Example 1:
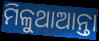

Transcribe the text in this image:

ମିଳୁଥାଆନ୍ତା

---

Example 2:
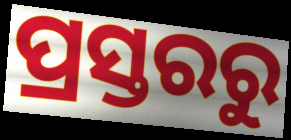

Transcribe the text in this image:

ପ୍ରସ୍ତରରୁ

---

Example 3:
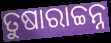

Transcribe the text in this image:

ତୁଷାରାଚ୍ଚନ୍ନ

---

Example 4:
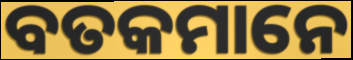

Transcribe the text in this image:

ବତକମାନେ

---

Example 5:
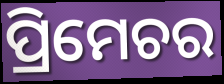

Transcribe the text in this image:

ପ୍ରିମେଚର